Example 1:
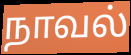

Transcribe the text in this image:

நாவல்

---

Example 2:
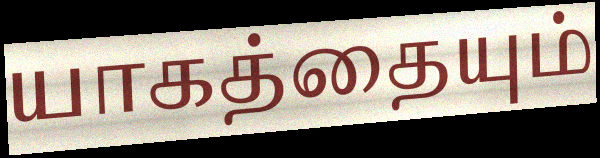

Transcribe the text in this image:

யாகத்தையும்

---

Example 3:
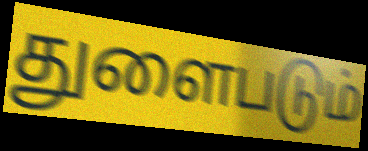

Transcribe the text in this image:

துளைபடும்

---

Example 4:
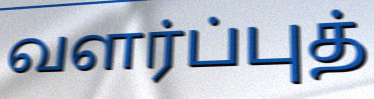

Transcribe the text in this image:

வளர்ப்புத்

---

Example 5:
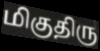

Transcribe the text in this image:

மிகுதிரு